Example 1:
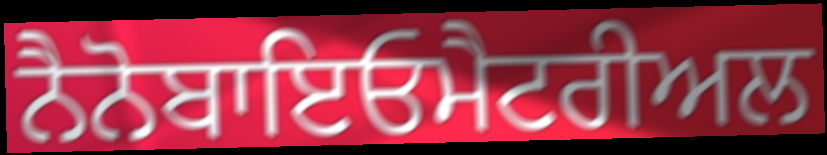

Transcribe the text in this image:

ਨੈਨੋਬਾਇਓਮੈਟਰੀਅਲ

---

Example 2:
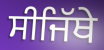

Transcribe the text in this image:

ਸੀਜਿੱਥੇ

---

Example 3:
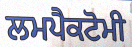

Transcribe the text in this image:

ਲਮਪੈਕਟੋਮੀ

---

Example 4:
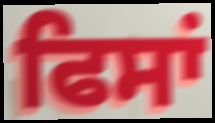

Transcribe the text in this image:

ਫਿਸਾਂ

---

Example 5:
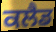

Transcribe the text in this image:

ਕਲੈਡ